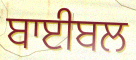
ਬਾਈਬਲ